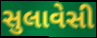
સુલાવેસી